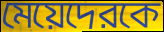
মেয়েদেরকে